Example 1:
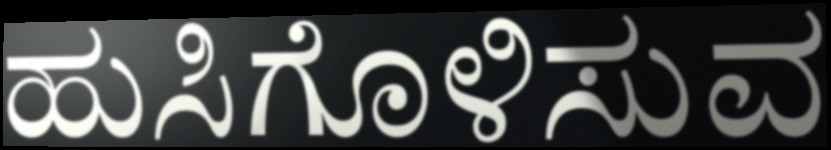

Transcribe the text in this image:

ಹುಸಿಗೊಳಿಸುವ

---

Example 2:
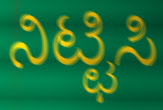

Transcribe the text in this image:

ನಿಟ್ಟಿಸಿ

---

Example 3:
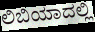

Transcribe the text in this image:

ಲಿಬಿಯಾದಲ್ಲಿ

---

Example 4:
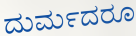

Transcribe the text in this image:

ದುರ್ಮದರೂ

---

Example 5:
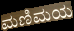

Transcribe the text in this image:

ಮಣಿಮಯ